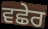
ਵਛੇਰ